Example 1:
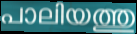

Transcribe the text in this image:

പാലിയത്തു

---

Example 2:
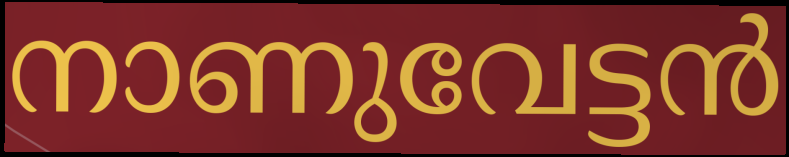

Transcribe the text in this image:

നാണുവേട്ടൻ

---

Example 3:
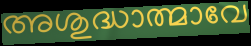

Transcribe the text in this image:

അശുദ്ധാത്മാവേ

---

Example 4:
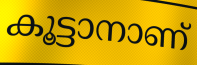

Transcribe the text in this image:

കൂട്ടാനാണ്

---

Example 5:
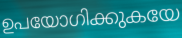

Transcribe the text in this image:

ഉപയോഗിക്കുകയേ